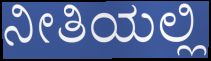
ನೀತಿಯಲ್ಲಿ